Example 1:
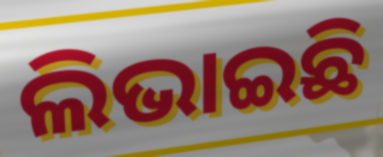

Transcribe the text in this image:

ଲିଭାଇଛି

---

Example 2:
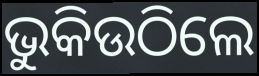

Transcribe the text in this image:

ଭୁକିଉଠିଲେ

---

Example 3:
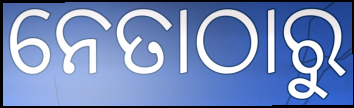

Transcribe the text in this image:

ନେତାଠାରୁ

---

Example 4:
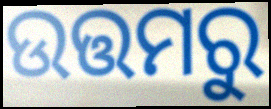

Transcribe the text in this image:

ଉତ୍ତମରୁ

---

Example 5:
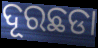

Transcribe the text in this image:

ଦୂରଛଡା